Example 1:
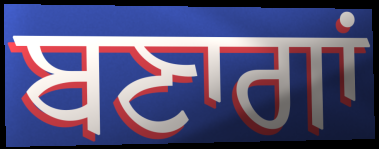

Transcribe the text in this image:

ਬਣਾਗਾਂ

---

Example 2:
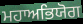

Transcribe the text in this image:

ਮਹਾਅਭਿਯੋਗ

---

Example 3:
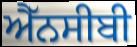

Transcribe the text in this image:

ਐੱਨਸੀਬੀ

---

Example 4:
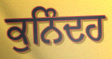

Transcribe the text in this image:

ਕੁਨਿੰਦਹ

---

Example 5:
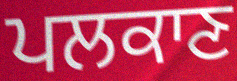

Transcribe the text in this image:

ਪਲਕਾਣ